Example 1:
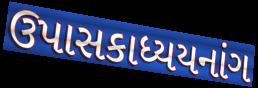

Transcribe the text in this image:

ઉપાસકાધ્યયનાંગ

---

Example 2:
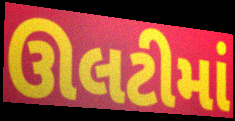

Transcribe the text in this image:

ઊલટીમાં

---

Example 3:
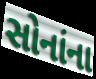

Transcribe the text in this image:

સોનાંના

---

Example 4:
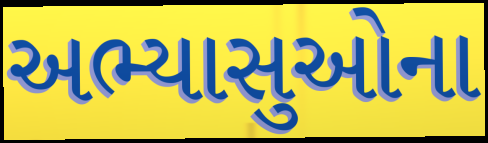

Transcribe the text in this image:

અભ્યાસુઓના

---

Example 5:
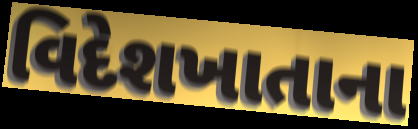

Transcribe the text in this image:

વિદેશખાતાના